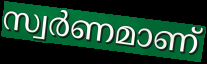
സ്വർണമാണ്